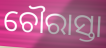
ଚୌରାସ୍ତା